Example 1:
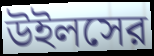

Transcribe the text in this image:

উইলসের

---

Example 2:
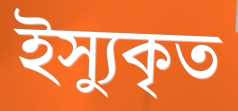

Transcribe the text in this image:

ইস্যুকৃত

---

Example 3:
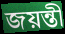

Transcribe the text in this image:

জয়ন্তী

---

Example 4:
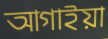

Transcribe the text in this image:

আগাইয়া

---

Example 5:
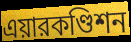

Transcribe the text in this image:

এয়ারকণ্ডিশন